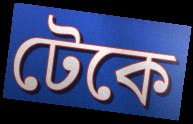
টেকে